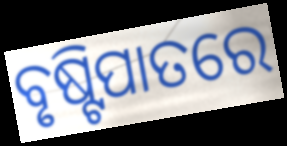
ବୃଷ୍ଟିପାତରେ